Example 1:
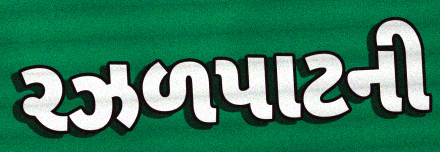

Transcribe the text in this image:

રઝળપાટની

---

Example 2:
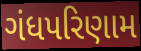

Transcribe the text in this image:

ગંધપરિણામ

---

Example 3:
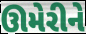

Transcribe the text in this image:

ઊમેરીને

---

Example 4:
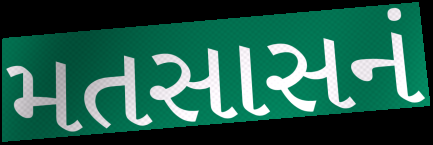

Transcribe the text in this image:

મતસાસનં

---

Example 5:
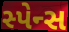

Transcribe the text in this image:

સ્પેન્સ